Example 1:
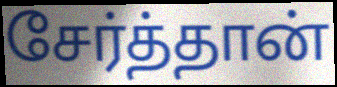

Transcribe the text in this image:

சேர்த்தான்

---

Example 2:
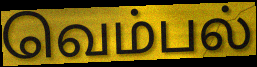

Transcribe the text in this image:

வெம்பல்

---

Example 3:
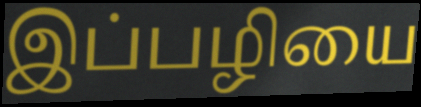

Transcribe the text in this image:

இப்பழியை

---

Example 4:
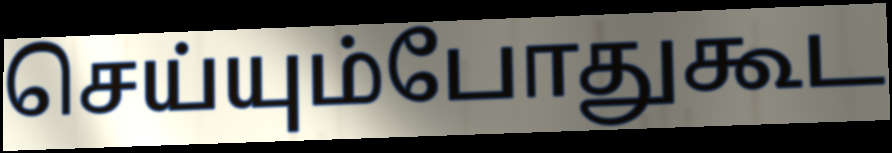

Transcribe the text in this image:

செய்யும்போதுகூட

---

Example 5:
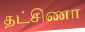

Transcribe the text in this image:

தட்சிணா